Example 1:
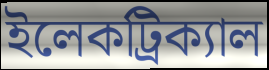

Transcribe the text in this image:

ইলেকট্রিক্যাল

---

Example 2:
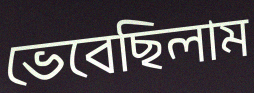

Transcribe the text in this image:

ভেবেছিলাম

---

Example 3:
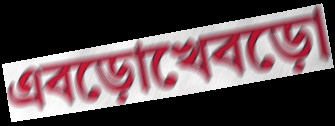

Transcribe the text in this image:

এবড়োখেবড়ো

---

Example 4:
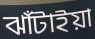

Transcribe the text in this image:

ঝাঁটাইয়া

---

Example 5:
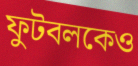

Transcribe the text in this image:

ফুটবলকেও